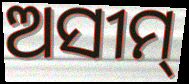
ଅସୀମ୍